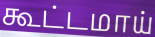
கூட்டமாய்